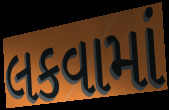
લકવામાં